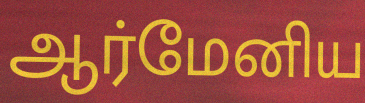
ஆர்மேனிய